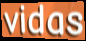
vidas